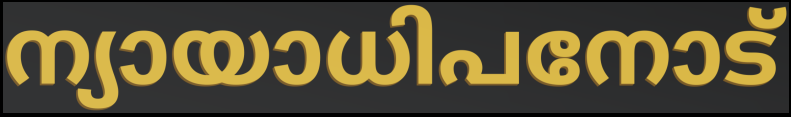
ന്യായാധിപനോട്